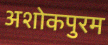
अशोकपुरम